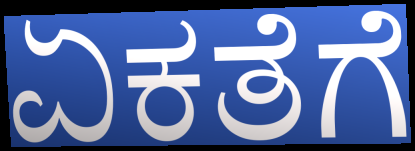
ಏಕತೆಗೆ